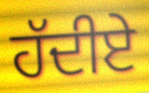
ਹੱਦੀਏ